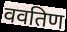
ववतिण